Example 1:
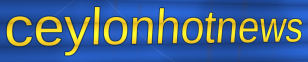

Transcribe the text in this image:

ceylonhotnews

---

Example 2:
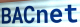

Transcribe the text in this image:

BACnet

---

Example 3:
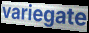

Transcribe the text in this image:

variegate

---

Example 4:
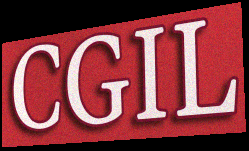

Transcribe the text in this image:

CGIL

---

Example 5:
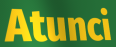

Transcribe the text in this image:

Atunci